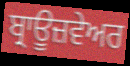
ਬ੍ਰਾਊਜ਼ਵੇਅਰ